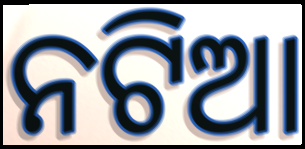
ନଟିଆ